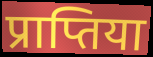
प्राप्तिया